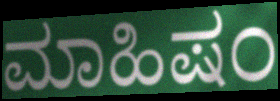
ಮಾಹಿಷಂ